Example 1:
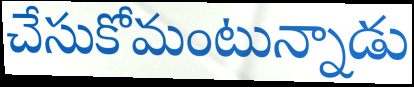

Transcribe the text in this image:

చేసుకోమంటున్నాడు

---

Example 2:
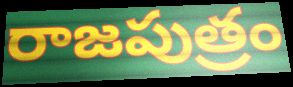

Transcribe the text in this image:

రాజపుత్రం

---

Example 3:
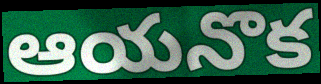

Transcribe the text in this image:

ఆయనొక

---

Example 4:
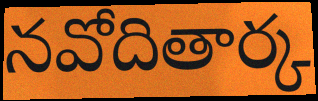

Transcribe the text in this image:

నవోదితార్క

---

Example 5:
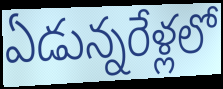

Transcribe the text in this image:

ఏడున్నరేళ్లలో